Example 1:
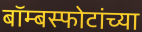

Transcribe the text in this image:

बॉम्बस्फोटांच्या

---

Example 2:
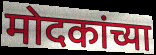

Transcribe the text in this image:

मोदकांच्या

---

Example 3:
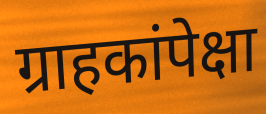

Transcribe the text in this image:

ग्राहकांपेक्षा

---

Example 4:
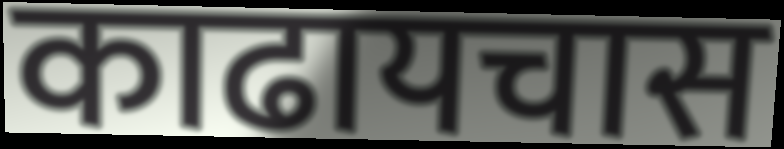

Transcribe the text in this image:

काढायचास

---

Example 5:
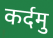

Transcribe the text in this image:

कर्दमु